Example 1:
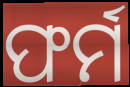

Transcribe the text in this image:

ଫର୍ମ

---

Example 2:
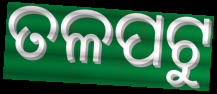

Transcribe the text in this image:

ତଳପଟୁ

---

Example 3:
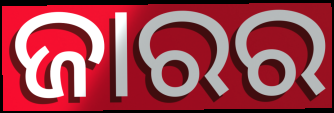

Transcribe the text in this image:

ଜାରର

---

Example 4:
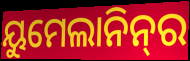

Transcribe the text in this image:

ୟୁମେଲାନିନ୍‌ର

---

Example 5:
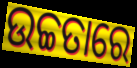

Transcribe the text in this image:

ଉଚ୍ଚତାରେ